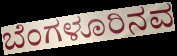
ಬೆಂಗಳೂರಿನವ